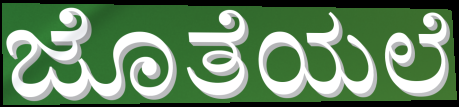
ಜೊತೆಯಲೆ